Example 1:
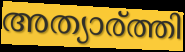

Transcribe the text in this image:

അത്യാര്ത്തി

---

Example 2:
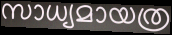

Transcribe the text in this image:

സാധ്യമായത്ര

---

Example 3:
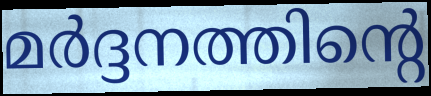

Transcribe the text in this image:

മർദ്ദനത്തിന്റെ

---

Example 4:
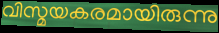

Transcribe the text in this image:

വിസ്മയകരമായിരുന്നു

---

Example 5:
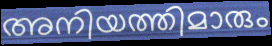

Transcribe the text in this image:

അനിയത്തിമാരും